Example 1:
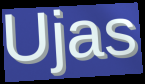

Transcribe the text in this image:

Ujas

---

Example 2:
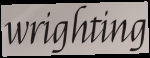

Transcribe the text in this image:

wrighting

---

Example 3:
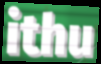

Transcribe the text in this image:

ithu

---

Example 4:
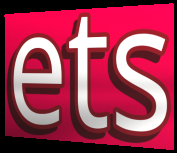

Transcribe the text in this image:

ets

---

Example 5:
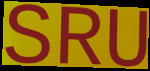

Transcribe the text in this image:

SRU